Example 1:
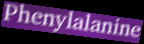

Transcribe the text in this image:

Phenylalanine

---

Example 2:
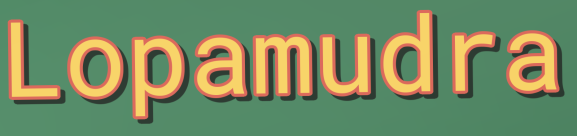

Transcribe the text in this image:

Lopamudra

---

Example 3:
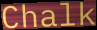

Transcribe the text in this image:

Chalk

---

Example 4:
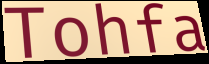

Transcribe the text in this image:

Tohfa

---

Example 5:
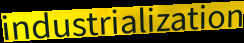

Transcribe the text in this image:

industrialization